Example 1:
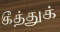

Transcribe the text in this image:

கீத்துக்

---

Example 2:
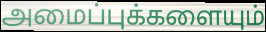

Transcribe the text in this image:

அமைப்புக்களையும்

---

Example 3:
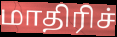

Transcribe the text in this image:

மாதிரிச்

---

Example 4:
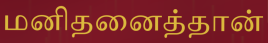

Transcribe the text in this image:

மனிதனைத்தான்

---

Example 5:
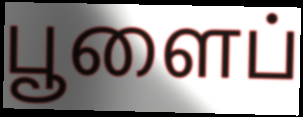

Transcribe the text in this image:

பூளைப்